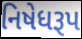
નિષેધરૂપ